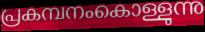
പ്രകമ്പനംകൊള്ളുന്നു